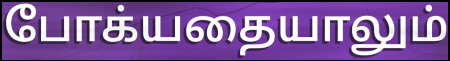
போக்யதையாலும்